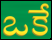
ఒకే